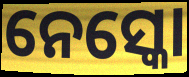
ନେସ୍କୋ